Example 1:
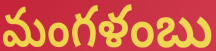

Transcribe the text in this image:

మంగళంబు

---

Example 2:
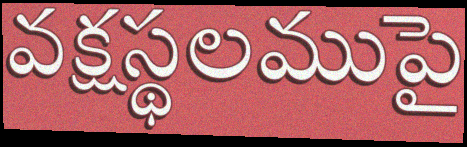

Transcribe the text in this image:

వక్షస్థలముపై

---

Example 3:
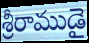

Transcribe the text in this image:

శ్రీరాముడై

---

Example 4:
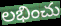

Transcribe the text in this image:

లభించు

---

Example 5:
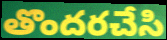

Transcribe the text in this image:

తొందరచేసి